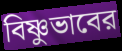
বিষ্ণুভাবের